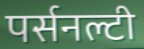
पर्सनल्टी